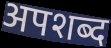
अपशब्द